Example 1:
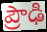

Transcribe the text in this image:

ప్రౌఢి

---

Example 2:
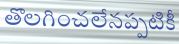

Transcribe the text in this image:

తొలగించలేనప్పటికీ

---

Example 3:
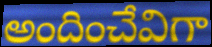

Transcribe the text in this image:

అందించేవిగా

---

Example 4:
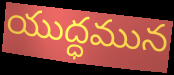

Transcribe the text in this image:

యుద్ధమున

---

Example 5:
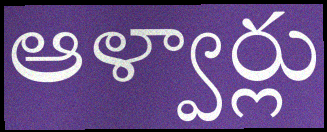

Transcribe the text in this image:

ఆళ్వార్లు